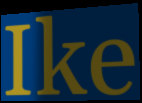
Ike